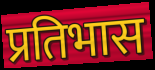
प्रतिभास